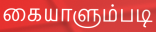
கையாளும்படி